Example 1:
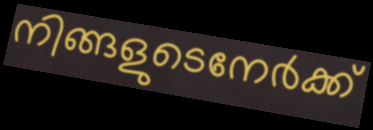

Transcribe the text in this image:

നിങ്ങളുടെനേർക്ക്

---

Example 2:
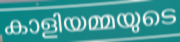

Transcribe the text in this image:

കാളിയമ്മയുടെ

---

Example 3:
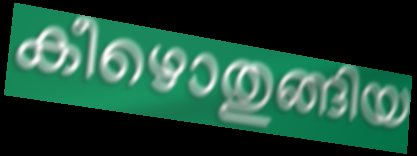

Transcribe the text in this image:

കീഴൊതുങ്ങിയ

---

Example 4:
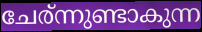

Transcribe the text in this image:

ചേര്ന്നുണ്ടാകുന്ന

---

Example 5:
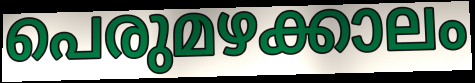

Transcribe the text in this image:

പെരുമഴക്കാലം